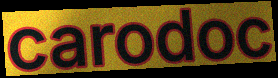
carodoc